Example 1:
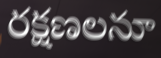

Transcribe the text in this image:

రక్షణలనూ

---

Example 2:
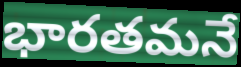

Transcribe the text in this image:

భారతమనే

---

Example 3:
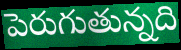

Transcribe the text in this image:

పెరుగుతున్నది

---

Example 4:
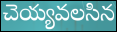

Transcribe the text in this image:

చెయ్యవలసిన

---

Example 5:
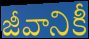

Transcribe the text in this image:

జీవానికీ